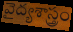
వైద్యశాస్త్రం